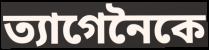
ত্যাগেনৈকে